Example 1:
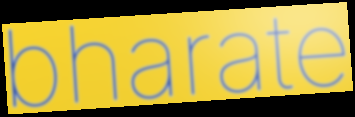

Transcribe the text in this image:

bharate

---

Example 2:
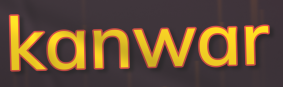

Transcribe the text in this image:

kanwar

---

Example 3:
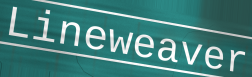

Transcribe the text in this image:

Lineweaver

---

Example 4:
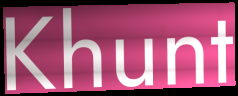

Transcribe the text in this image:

Khunt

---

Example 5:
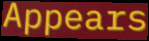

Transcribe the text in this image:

Appears